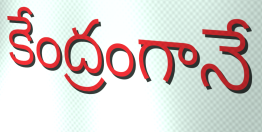
కేంద్రంగానే